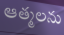
ఆత్మలను